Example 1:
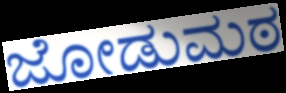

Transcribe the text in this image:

ಜೋಡುಮಠ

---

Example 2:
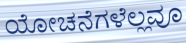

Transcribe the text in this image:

ಯೋಚನೆಗಳೆಲ್ಲವೂ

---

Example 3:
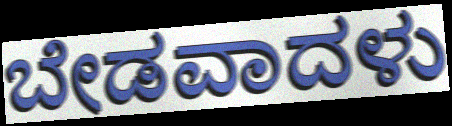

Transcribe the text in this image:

ಬೇಡವಾದಳು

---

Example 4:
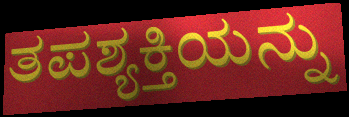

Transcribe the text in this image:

ತಪಶ್ಯಕ್ತಿಯನ್ನು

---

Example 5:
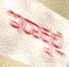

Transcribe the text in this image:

ಇರಾಕ್ನಲ್ಲಿ